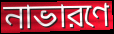
নাভারণে